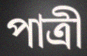
পাত্রী